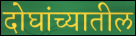
दोघांच्यातील